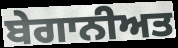
ਬੇਗਾਨੀਅਤ